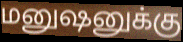
மனுஷனுக்கு